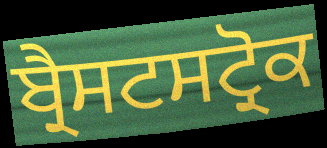
ਬ੍ਰੈਸਟਸਟ੍ਰੋਕ